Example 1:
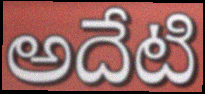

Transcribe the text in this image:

అదేటి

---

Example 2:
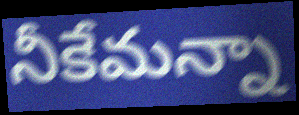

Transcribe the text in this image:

నీకేమన్నా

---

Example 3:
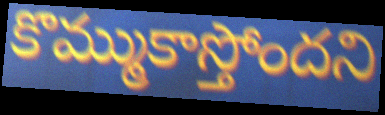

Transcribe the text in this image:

కొమ్ముకాస్తోందని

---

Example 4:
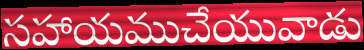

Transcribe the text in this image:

సహాయముచేయువాడు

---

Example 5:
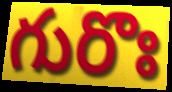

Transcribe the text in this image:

గురొః